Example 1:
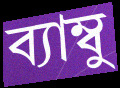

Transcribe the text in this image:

ব্যাম্বু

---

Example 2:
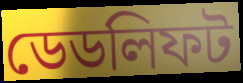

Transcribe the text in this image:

ডেডলিফট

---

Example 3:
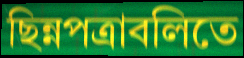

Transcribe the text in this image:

ছিন্নপত্রাবলিতে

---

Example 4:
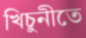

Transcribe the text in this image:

খিচুনীতে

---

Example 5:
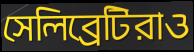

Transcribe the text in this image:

সেলিব্রেটিরাও